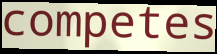
competes